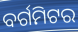
ବର୍ଗମିଟର